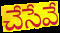
చేసేవే